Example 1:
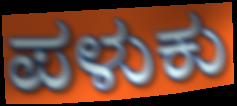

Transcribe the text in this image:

ಪಳುಕು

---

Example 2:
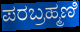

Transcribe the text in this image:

ಪರಬ್ರಹ್ಮಣಿ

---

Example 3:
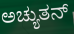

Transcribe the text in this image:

ಅಚ್ಯುತನ್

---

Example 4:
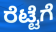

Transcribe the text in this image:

ರೆಟ್ಟೆಗೆ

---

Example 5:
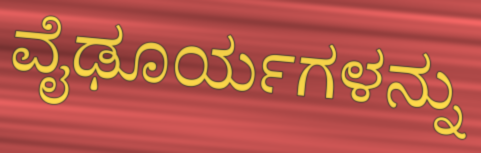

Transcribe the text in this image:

ವೈಢೂರ್ಯಗಳನ್ನು